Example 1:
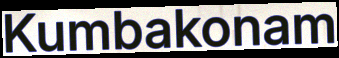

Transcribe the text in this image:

Kumbakonam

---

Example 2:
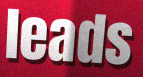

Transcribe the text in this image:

leads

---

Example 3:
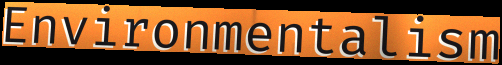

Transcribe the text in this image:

Environmentalism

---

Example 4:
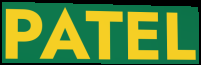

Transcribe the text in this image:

PATEL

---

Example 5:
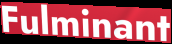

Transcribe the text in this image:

Fulminant